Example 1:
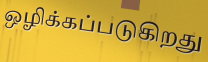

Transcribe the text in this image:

ஒழிக்கப்படுகிறது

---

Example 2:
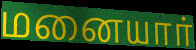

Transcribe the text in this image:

மனையார்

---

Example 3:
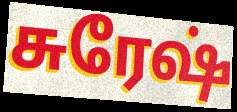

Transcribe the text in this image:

சுரேஷ்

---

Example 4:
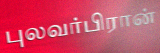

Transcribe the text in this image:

புலவர்பிரான்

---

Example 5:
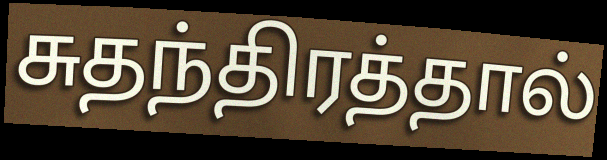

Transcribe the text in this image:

சுதந்திரத்தால்